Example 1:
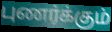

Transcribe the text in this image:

புணர்க்கும்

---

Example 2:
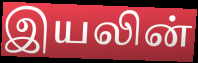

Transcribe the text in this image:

இயலின்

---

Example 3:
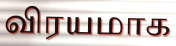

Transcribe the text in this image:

விரயமாக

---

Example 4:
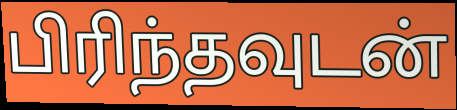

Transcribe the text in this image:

பிரிந்தவுடன்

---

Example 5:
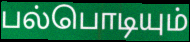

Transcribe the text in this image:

பல்பொடியும்